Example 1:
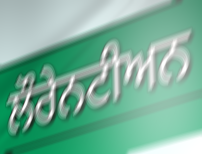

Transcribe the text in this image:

ਲੌਰੇਨਟੀਅਨ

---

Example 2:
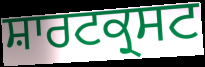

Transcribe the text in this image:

ਸ਼ਾਰਟਕ੍ਰਸਟ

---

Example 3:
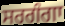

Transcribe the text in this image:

ਸਰਗੰਗਾ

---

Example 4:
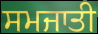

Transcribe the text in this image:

ਸਮਜਾਤੀ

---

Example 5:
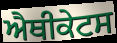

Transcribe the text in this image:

ਐਥੀਕੇਟਸ